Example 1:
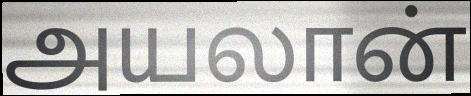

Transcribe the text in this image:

அயலான்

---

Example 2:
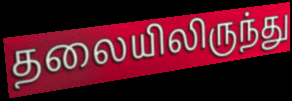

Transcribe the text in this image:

தலையிலிருந்து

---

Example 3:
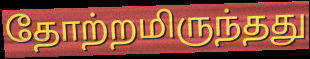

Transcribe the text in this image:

தோற்றமிருந்தது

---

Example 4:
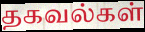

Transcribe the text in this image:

தகவல்கள்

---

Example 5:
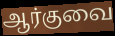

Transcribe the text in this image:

ஆர்குவை